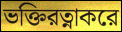
ভক্তিরত্নাকরে